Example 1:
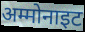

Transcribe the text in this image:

अम्मोनाइट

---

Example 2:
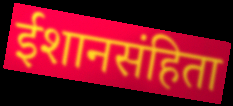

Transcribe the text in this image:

ईशानसंहिता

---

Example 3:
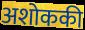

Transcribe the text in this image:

अशोककी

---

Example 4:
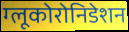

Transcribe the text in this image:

ग्लूकोरोनिडेशन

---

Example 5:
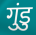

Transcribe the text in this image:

गुंडु